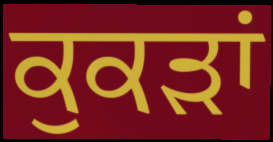
ਕੁਕੜਾਂ